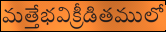
మత్తేభవిక్రీడితములో